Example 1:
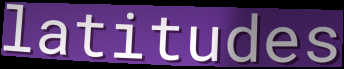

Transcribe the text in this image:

latitudes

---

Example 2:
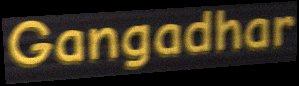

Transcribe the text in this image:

Gangadhar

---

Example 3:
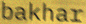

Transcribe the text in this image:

bakhar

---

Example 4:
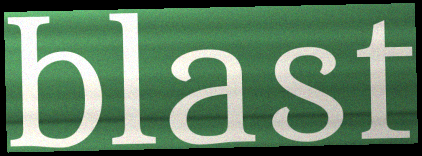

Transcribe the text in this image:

blast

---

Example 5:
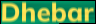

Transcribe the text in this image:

Dhebar